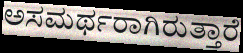
ಅಸಮರ್ಥರಾಗಿರುತ್ತಾರೆ